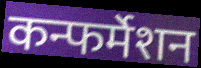
कन्‍फर्मेशन